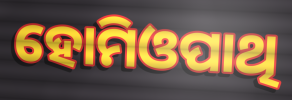
ହୋମିଓପାଥି